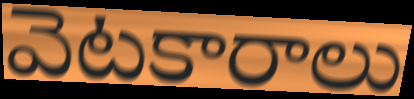
వెటకారాలు